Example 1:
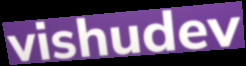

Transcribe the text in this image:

vishudev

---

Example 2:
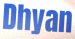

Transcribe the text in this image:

Dhyan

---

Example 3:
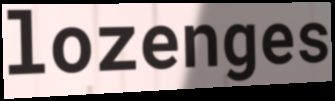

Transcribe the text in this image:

lozenges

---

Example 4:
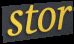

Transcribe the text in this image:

stor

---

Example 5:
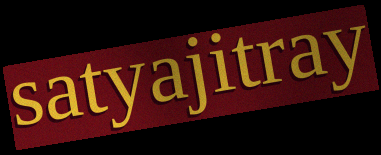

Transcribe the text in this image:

satyajitray